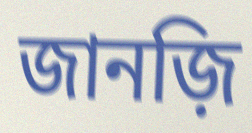
জানজ়ি